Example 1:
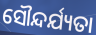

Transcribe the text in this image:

ସୌନ୍ଦର୍ଯ୍ୟତା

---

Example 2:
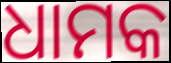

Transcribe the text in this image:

ଧାମକ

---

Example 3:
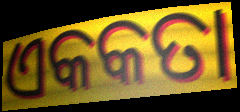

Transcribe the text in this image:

ଏକକତା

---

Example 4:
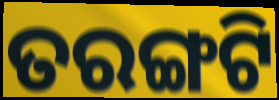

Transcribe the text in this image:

ତରଙ୍ଗଟି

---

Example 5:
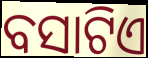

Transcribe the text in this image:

ବସାଟିଏ